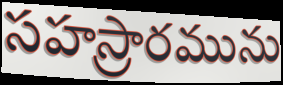
సహస్రారమును